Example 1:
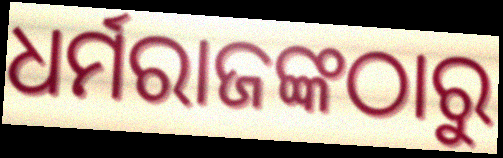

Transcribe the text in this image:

ଧର୍ମରାଜଙ୍କଠାରୁ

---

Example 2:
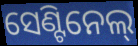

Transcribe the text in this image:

ସେଣ୍ଟିନେଲ୍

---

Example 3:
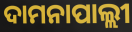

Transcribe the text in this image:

ଦାମନାପାଲ୍ଲୀ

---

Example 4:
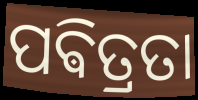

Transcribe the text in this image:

ପଵିତ୍ରତା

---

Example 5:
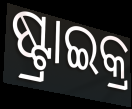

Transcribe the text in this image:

ଷ୍ଟ୍ରାଇକ୍ର